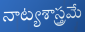
నాట్యశాస్త్రమే